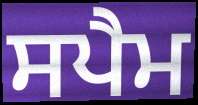
ਸਪੈਮ